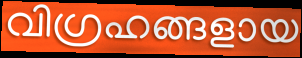
വിഗ്രഹങ്ങളായ